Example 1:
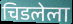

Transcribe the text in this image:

चिडलेला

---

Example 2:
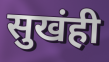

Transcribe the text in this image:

सुखंही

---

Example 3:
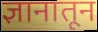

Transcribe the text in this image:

ज्ञानातून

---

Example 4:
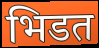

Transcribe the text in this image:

भिडत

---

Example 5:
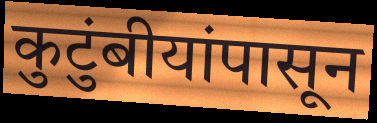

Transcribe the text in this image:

कुटुंबीयांपासून